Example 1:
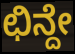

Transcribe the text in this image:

ಛಿನ್ದೇ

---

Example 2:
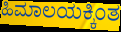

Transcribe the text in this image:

ಹಿಮಾಲಯಕ್ಕಿಂತ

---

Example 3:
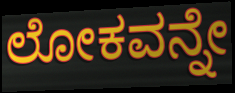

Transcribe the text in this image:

ಲೋಕವನ್ನೇ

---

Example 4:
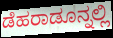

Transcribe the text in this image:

ಡೆಹರಾಡೂನ್ನಲ್ಲಿ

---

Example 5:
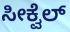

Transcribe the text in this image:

ಸೀಕ್ವೆಲ್